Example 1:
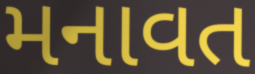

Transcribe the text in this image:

મનાવત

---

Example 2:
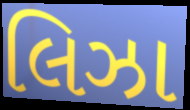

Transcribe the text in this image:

લિઝા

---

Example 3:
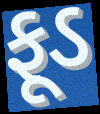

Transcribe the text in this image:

ફૂડ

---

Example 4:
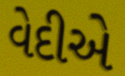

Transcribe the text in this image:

વેદીએ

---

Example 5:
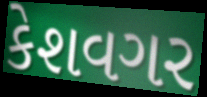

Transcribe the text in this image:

કેશવગર